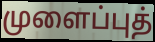
முளைப்புத்